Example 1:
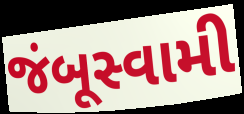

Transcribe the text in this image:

જંબૂસ્વામી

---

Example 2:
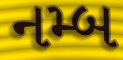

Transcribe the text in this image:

નમ્બ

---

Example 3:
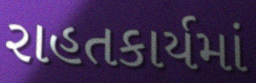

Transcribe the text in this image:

રાહતકાર્યમાં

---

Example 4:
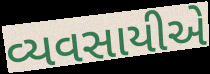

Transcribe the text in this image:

વ્યવસાયીએ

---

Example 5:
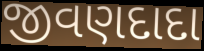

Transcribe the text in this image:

જીવણદાદા